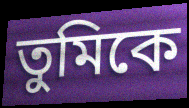
তুমিকে